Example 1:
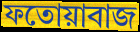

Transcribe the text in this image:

ফতোয়াবাজ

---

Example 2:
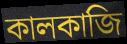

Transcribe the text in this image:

কালকাজি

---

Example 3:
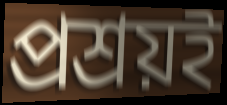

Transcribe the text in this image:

প্রশ্রয়ই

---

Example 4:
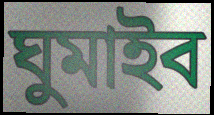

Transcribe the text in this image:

ঘুমাইব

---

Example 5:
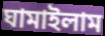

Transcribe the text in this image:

ঘামাইলাম